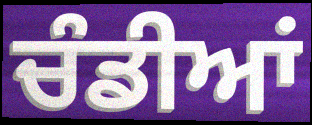
ਚੰਡੀਆਂ